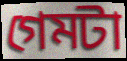
গেমটা